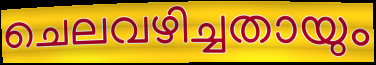
ചെലവഴിച്ചതായും